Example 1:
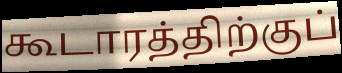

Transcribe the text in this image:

கூடாரத்திற்குப்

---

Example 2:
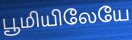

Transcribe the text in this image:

பூமியிலேயே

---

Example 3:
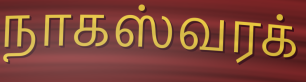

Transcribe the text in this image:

நாகஸ்வரக்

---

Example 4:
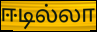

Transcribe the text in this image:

ஈடில்லா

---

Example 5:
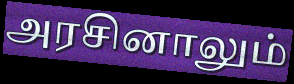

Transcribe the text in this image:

அரசினாலும்